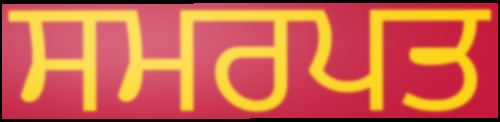
ਸਮਰਪਤ